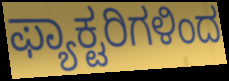
ಫ್ಯಾಕ್ಟರಿಗಳಿಂದ